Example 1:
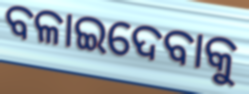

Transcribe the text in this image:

ବଳାଇଦେବାକୁ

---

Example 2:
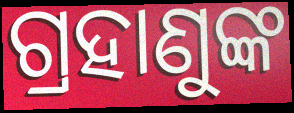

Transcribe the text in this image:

ଗ୍ରହାଣୁଙ୍କ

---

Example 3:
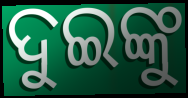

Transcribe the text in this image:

ଦୁଇଙ୍କୁ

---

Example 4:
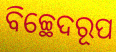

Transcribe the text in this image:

ବିଚ୍ଛେଦରୂପ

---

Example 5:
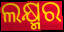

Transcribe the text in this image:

ଲକ୍ଷ୍ମର